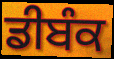
ਡੀਬੰਕ